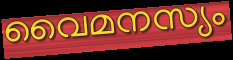
വൈമനസ്യം